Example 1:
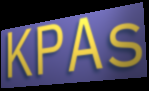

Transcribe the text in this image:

KPAs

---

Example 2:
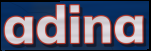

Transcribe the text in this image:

adina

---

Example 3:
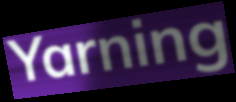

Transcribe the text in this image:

Yarning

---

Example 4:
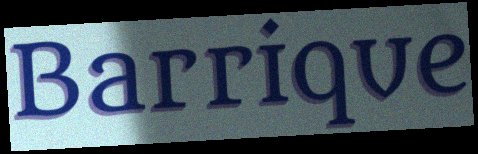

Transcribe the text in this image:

Barrique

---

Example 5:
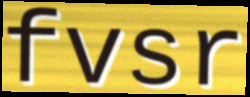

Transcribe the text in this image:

fvsr